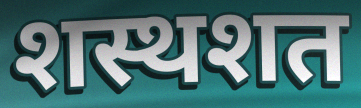
शस्थशत